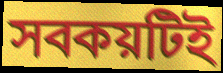
সবকয়টিই